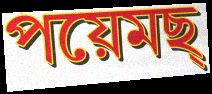
পয়েমছ্